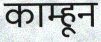
काम्हून